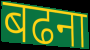
बढना